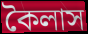
কৈলাস